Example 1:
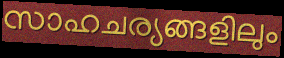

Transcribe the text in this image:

സാഹചര്യങ്ങളിലും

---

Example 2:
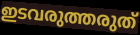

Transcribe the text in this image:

ഇടവരുത്തരുത്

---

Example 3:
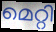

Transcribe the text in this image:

മെറ്റി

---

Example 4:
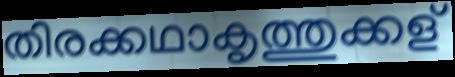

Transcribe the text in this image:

തിരക്കഥാകൃത്തുക്കള്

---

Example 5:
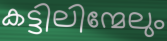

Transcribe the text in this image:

കട്ടിലിന്മേലും